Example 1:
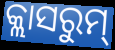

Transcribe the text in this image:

କ୍ଲାସରୁମ୍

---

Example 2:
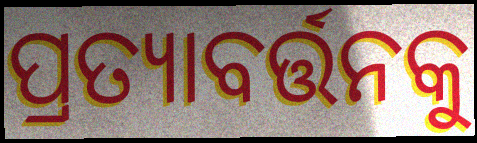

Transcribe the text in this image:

ପ୍ରତ୍ୟାବର୍ତ୍ତନକୁ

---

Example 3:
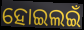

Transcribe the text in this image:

ହୋଇଲଇଁ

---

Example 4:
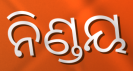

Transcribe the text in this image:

ନିଣ୍ଡୟ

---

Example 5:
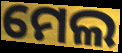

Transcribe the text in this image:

ମେଲ